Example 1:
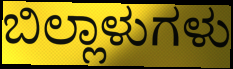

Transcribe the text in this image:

ಬಿಲ್ಲಾಳುಗಳು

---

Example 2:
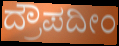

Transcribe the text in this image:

ದ್ರೌಪದೀಂ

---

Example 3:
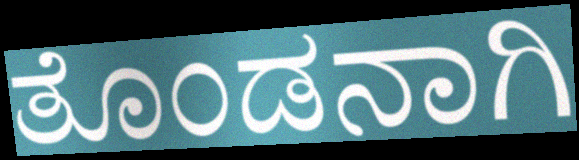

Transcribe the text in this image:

ತೊಂಡನಾಗಿ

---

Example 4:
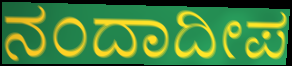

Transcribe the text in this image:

ನಂದಾದೀಪ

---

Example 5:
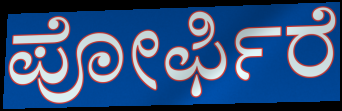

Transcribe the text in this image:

ಪೋರ್ಫಿರೆ